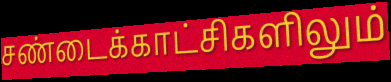
சண்டைக்காட்சிகளிலும்